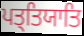
ਪਤ੍ਤਿਯਾਤਿ